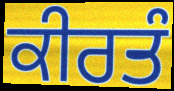
ਕੀਰਤੰ